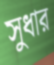
সুধার